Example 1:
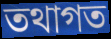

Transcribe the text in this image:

তথাগত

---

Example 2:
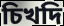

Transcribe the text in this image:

চিখদি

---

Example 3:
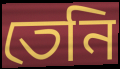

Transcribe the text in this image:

তেনি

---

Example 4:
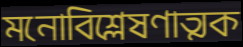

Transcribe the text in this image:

মনোবিশ্লেষণাত্মক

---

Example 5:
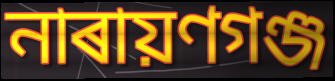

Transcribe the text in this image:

নাৰায়ণগঞ্জ